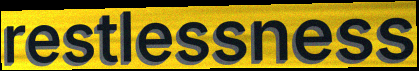
restlessness